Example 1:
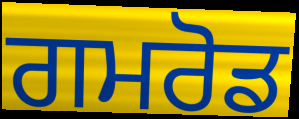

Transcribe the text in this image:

ਗਮਰੋਡ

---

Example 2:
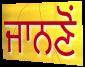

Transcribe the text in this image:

ਜਾਨਣੋਂ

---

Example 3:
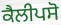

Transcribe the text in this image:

ਕੈਲੀਪਸੋ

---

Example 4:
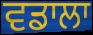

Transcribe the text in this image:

ਵਡਾਲਾ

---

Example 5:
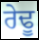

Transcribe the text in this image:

ਰੇਢੂ